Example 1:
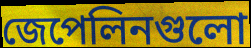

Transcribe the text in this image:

জেপেলিনগুলো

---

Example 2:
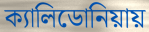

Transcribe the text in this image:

ক্যালিডোনিয়ায়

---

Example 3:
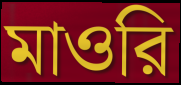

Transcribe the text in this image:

মাওরি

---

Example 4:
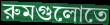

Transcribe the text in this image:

রুমগুলোতে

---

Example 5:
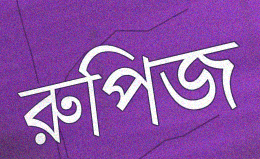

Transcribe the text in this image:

রুপিজ